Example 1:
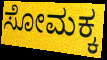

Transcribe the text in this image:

ಸೋಮಕ್ಕ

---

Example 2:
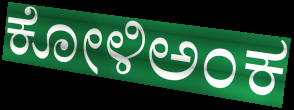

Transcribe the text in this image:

ಕೋಳಿಅಂಕ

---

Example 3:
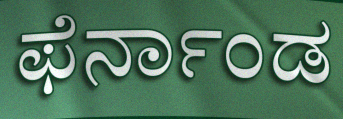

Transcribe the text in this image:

ಫೆರ್ನಾಂಡ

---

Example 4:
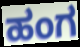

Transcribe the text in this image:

ಹಂಗ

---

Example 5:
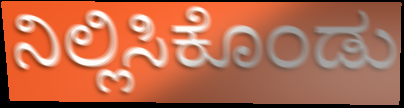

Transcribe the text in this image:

ನಿಲ್ಲಿಸಿಕೊಂಡು